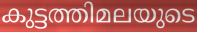
കുട്ടത്തിമലയുടെ